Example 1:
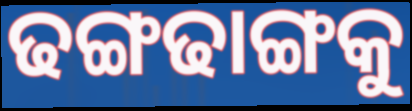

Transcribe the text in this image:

ଢଙ୍ଗଢାଙ୍ଗକୁ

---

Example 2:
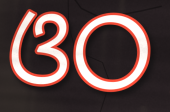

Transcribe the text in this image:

ଓଠ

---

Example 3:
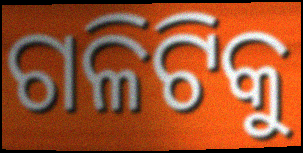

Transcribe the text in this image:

ଗଳିଟିକୁ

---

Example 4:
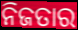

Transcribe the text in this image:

ନିଜତାର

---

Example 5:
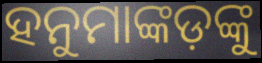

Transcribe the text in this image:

ହନୁମାଙ୍କଡ଼ଙ୍କୁ